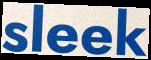
sleek